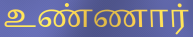
உண்ணார்